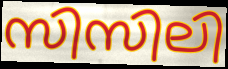
സിസിലി